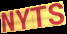
NYTS